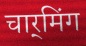
चार्मिंग